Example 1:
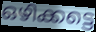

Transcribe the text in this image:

ഒഴിക്കട്ടെ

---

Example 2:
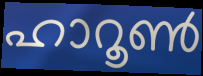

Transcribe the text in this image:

ഹാറൂൺ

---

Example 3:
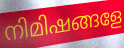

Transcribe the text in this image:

നിമിഷങ്ങളേ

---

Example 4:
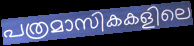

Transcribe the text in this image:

പത്രമാസികകളിലെ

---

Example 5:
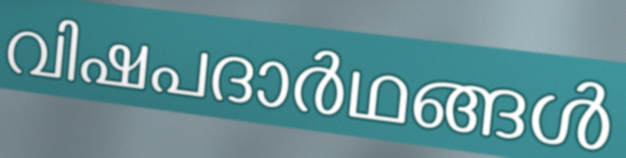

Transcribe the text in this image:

വിഷപദാർഥങ്ങൾ